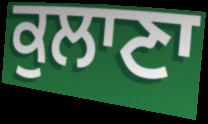
ਕੁਲਾਣਾ